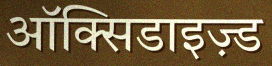
ऑक्सिडाइज़्ड